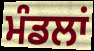
ਮੰਡਲਾਂ